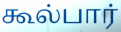
கூல்பார்